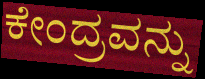
ಕೇಂದ್ರವನ್ನು